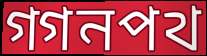
গগনপথ